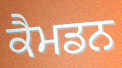
ਕੈਮਡਨ